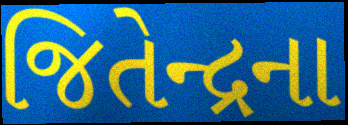
જિતેન્દ્રના